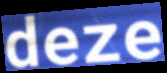
deze